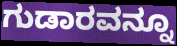
ಗುಡಾರವನ್ನೂ